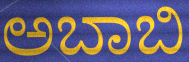
ಅಬಾಬಿ